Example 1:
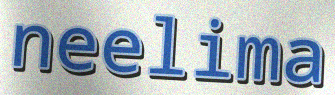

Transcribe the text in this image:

neelima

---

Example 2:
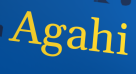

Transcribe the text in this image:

Agahi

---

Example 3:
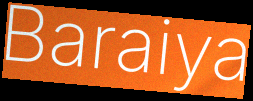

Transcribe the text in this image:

Baraiya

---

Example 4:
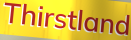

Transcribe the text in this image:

Thirstland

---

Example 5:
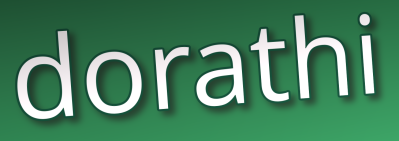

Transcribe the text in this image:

dorathi